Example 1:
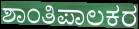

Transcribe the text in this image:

ಶಾಂತಿಪಾಲಕರ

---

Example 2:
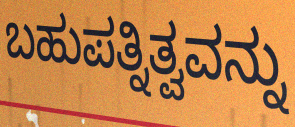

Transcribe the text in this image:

ಬಹುಪತ್ನಿತ್ವವನ್ನು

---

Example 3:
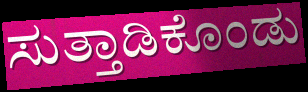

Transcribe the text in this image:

ಸುತ್ತಾಡಿಕೊಂಡು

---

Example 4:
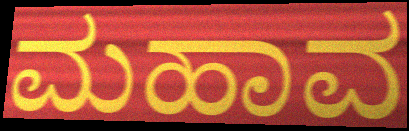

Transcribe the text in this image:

ಮಹಾವ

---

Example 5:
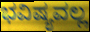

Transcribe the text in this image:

ಭವಿಷ್ಯವಲ್ಲ